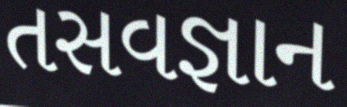
તસવજ્ઞાન